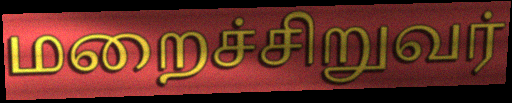
மறைச்சிறுவர்